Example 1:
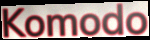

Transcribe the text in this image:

Komodo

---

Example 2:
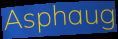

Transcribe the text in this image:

Asphaug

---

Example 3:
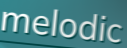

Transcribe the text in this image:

melodic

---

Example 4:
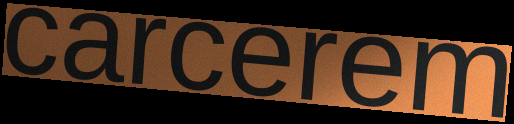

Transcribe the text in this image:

carcerem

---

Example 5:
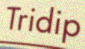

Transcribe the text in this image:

Tridip